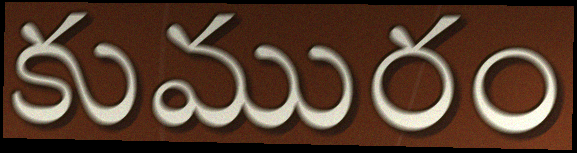
కుమురం